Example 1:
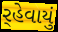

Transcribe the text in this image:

ર્‌હેવાયું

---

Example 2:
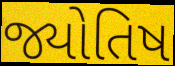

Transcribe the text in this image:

જ્યોતિષ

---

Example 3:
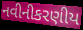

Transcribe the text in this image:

નવીનીકરણીય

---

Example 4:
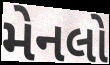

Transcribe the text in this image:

મેનલો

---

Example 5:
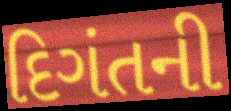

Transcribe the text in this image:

દિગંતની